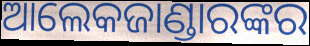
ଆଲେକଜାଣ୍ଡାରଙ୍କର